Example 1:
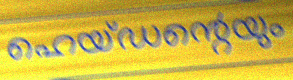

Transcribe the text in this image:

ഹെയ്ഡന്റെയും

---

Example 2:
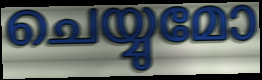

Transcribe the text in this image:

ചെയ്യുമോ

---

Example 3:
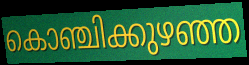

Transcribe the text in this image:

കൊഞ്ചിക്കുഴഞ്ഞ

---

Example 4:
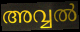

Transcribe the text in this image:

അവ്വൽ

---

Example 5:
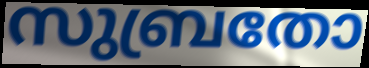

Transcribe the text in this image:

സുബ്രതോ